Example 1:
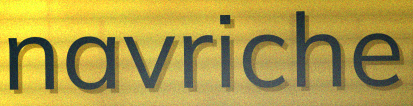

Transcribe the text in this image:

navriche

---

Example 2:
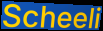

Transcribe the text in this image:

Scheeli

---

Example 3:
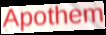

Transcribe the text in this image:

Apothem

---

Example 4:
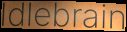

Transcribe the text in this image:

Idlebrain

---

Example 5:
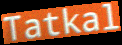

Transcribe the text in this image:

Tatkal